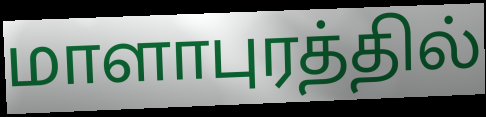
மாளாபுரத்தில்